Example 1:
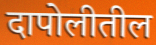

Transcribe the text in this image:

दापोलीतील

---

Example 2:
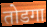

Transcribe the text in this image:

तोडगा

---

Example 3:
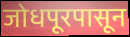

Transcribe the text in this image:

जोधपूरपासून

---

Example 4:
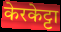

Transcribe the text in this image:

केरकेट्टा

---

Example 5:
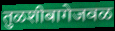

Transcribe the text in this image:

तुळशीबागेजवळ